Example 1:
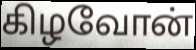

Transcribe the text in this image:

கிழவோன்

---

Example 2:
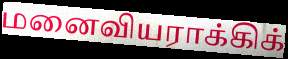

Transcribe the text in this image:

மனைவியராக்கிக்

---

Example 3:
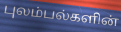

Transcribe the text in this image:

புலம்பல்களின்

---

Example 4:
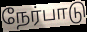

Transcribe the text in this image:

நேர்பாடு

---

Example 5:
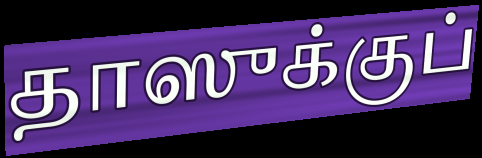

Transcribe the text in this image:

தாஸுக்குப்